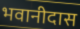
भवानीदास